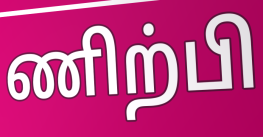
ணிற்பி